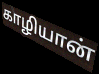
காழியான்